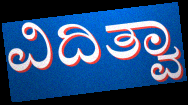
ವಿದಿತ್ವಾ